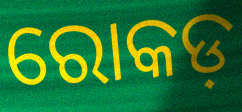
ରୋକଡ଼